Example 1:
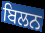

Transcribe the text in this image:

ਬਿਲਨ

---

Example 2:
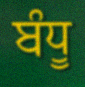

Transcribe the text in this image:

ਬੰਧੂ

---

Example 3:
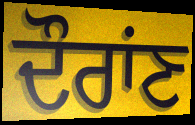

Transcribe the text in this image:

ਦੌਰਾਂਣ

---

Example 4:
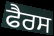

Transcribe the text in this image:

ਫੈਰਸ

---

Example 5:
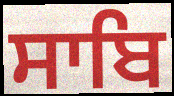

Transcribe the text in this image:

ਸਾਬਿ